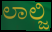
ಲಾಲ್ಜಿ